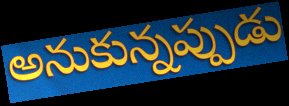
అనుకున్నప్పుడు